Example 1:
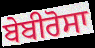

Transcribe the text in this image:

ਬੇਬੀਰੋਸਾ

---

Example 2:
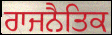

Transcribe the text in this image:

ਰਾਜਨੈਤਿਕ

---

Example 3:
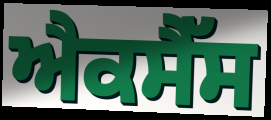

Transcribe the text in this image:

ਐਕਸੈੱਸ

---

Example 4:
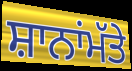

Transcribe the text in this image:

ਸ਼ਾਨਾਂਮੱਤੇ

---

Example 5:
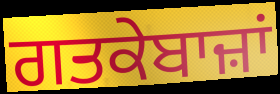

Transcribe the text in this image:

ਗਤਕੇਬਾਜ਼ਾਂ